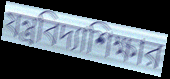
যন্ত্রবিদ্যাশিক্ষার